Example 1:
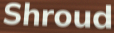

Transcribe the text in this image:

Shroud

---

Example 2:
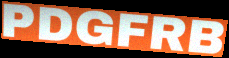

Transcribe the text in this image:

PDGFRB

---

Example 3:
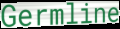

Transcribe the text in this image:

Germline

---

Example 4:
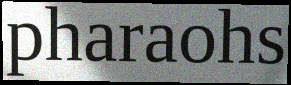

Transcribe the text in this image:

pharaohs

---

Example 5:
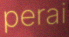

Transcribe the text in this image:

perai